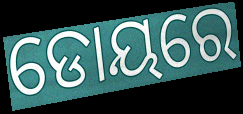
ଡୋୟରେ